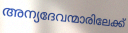
അന്യദേവന്മാരിലേക്ക്